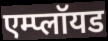
एम्प्लॉयड